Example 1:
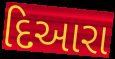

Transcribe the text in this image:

દિઆરા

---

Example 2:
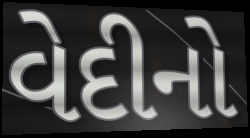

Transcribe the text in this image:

વેદીનો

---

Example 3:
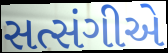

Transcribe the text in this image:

સત્સંગીએ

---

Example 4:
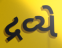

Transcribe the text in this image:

દ્રવ્યે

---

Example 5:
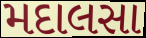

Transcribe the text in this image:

મદાલસા